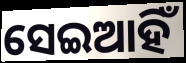
ସେଇଆହିଁ